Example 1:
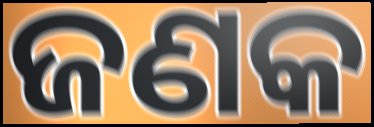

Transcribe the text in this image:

ଜଣକ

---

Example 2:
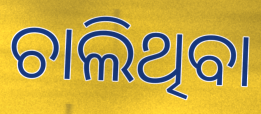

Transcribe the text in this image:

ଚାଲିଥିବା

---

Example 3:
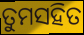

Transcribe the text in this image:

ତୁମସହିତ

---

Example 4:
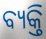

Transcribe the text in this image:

ବ୍ୟକ୍ତି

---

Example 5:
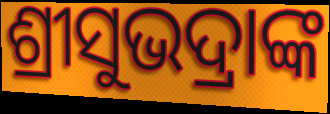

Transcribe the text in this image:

ଶ୍ରୀସୁଭଦ୍ରାଙ୍କ